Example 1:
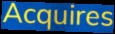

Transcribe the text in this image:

Acquires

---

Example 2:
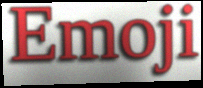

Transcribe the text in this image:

Emoji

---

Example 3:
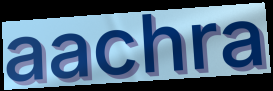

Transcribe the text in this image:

aachra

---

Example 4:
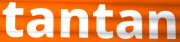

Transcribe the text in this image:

tantan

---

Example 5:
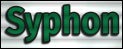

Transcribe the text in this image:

Syphon